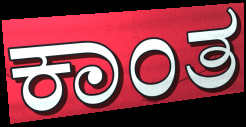
ಕಾಂತ